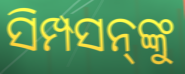
ସିମ୍ପସନ୍‍ଙ୍କୁ